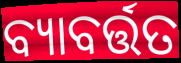
ବ୍ୟାବର୍ତ୍ତତ